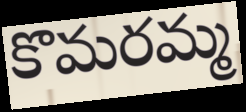
కొమరమ్మ